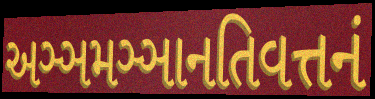
અઞ્ઞમઞ્ઞાનતિવત્તનં